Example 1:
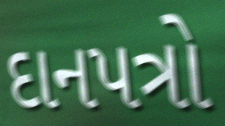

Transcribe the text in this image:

દાનપત્રો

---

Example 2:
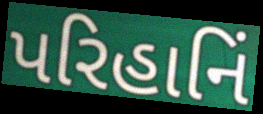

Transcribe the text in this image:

પરિહાનિં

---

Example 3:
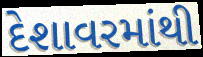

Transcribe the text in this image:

દેશાવરમાંથી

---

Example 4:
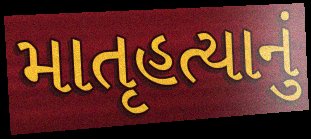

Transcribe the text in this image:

માતૃહત્યાનું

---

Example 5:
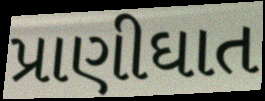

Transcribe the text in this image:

પ્રાણીઘાત